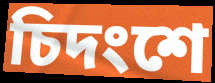
চিদংশে